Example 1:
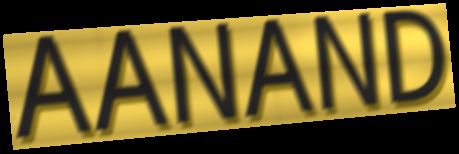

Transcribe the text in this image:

AANAND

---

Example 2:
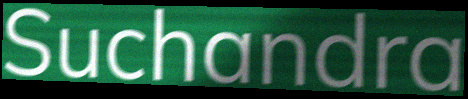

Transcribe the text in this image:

Suchandra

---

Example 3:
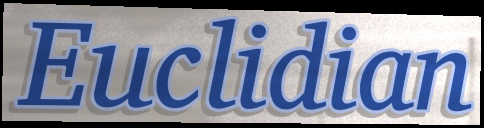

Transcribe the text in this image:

Euclidian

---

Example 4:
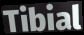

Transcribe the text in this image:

Tibial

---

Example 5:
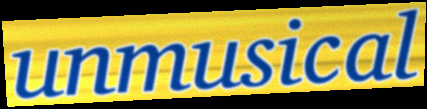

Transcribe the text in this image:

unmusical